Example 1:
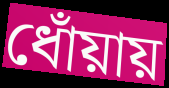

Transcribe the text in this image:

ধোঁয়ায়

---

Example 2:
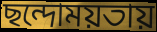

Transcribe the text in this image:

ছন্দোময়তায়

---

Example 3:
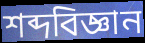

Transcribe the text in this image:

শব্দবিজ্ঞান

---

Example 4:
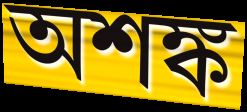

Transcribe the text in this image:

অশঙ্ক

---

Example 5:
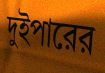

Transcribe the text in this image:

দুইপারের